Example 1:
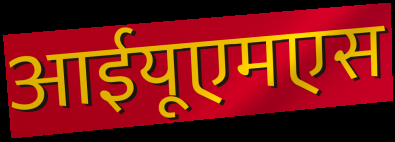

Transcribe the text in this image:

आईयूएमएस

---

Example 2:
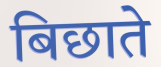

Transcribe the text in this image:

बिछाते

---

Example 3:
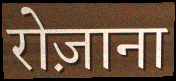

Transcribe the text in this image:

रोज़ाना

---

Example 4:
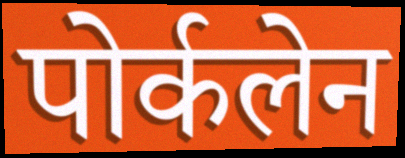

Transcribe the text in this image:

पोर्कलेन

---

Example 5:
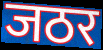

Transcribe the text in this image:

जठर